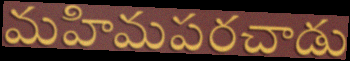
మహిమపరచాడు